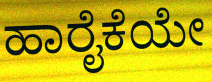
ಹಾರೈಕೆಯೇ